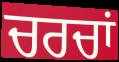
ਚਰਚਾਂ